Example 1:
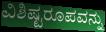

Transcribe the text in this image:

ವಿಶಿಷ್ಟರೂಪವನ್ನು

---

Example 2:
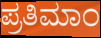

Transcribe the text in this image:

ಪ್ರತಿಮಾಂ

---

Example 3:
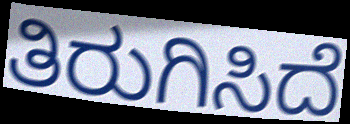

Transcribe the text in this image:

ತಿರುಗಿಸಿದೆ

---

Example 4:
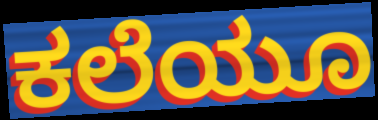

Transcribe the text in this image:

ಕಲೆಯೂ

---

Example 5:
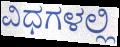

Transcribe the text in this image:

ವಿಧಗಳಲ್ಲಿ